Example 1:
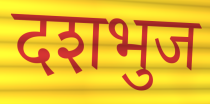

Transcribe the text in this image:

दशभुज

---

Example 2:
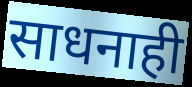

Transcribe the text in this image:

साधनाही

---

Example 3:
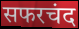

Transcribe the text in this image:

सफरचंद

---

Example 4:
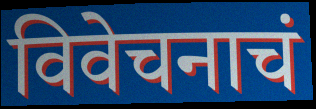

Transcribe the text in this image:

विवेचनाचं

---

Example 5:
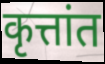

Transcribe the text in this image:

कृत्तांत